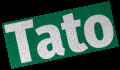
Tato